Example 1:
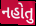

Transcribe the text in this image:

નહોતુ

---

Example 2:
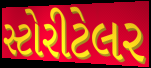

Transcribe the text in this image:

સ્ટોરીટેલર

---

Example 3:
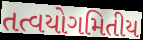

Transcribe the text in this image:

તત્વયોગમિતીય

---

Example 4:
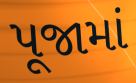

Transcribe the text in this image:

પૂજામાં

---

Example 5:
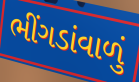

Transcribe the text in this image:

ભીંગડાંવાળું